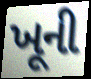
ખૂની